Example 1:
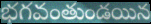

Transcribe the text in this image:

భగవంతుండయిన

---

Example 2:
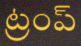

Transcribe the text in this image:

ట్రంప్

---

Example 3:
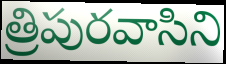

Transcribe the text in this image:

త్రిపురవాసిని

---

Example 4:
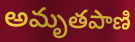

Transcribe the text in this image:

అమృతపాణి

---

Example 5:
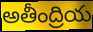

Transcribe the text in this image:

అతీంద్రియ